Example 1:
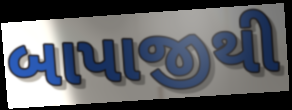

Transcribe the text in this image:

બાપાજીથી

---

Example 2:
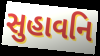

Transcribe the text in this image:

સુહાવનિ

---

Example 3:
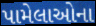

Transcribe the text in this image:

પામેલાઓના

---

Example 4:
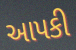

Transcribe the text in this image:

આપકી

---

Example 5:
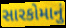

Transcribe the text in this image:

સારકોમાનું